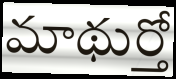
మాథుర్తో